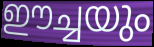
ഈച്ചയും